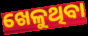
ଖେଳୁଥିବା